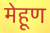
मेहूण